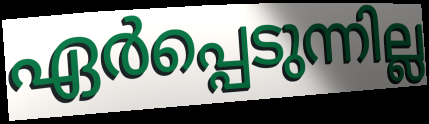
ഏർപ്പെടുന്നില്ല